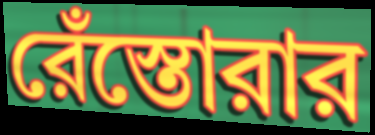
রেঁস্তোরার